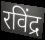
रविंद्र